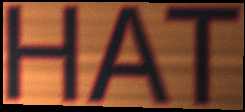
HAT